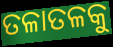
ତଳାତଳକୁ